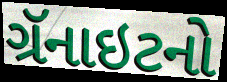
ગ્રૅનાઇટનો